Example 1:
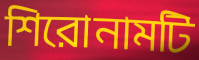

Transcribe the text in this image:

শিরোনামটি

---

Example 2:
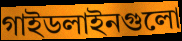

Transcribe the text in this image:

গাইডলাইনগুলো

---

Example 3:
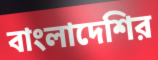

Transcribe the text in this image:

বাংলাদেশির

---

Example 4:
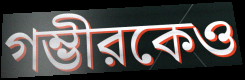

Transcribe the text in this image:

গম্ভীরকেও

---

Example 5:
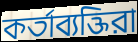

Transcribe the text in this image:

কর্তাব্যক্তিরা